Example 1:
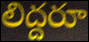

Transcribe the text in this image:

లిద్దరూ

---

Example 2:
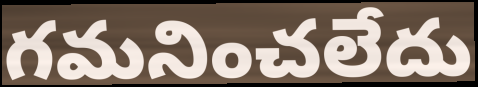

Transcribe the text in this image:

గమనించలేదు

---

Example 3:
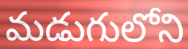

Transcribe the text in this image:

మడుగులోని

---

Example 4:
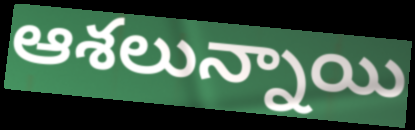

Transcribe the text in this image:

ఆశలున్నాయి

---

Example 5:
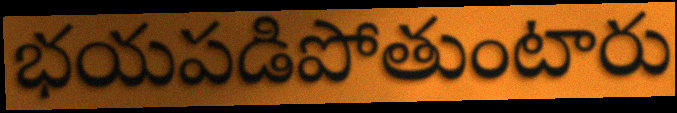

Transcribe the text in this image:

భయపడిపోతుంటారు